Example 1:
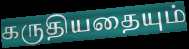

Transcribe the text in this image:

கருதியதையும்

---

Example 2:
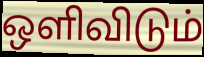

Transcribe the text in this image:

ஒளிவிடும்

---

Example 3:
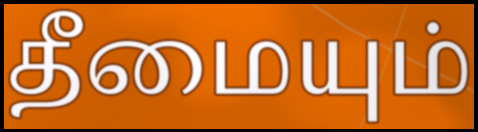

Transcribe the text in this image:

தீமையும்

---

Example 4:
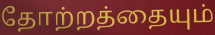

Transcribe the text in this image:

தோற்றத்தையும்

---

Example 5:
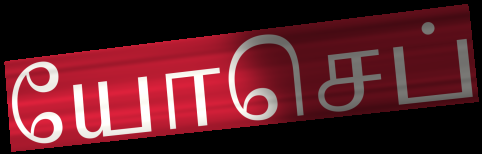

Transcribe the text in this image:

யோசெப்